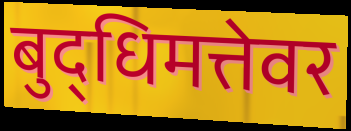
बुद्धिमत्तेवर